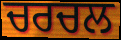
ਚਰਚਲ